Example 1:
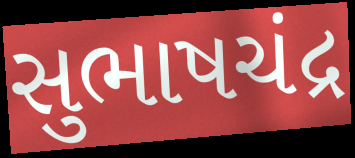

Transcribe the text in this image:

સુભાષચંદ્ર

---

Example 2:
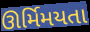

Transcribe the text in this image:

ઊર્મિમયતા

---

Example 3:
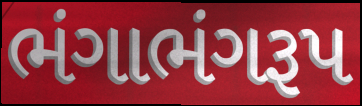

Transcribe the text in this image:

ભંગાભંગરૂપ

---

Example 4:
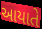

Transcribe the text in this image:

આયાતે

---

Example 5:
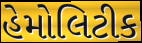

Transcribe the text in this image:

હેમોલિટીક